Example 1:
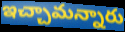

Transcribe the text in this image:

ఇచ్చామన్నారు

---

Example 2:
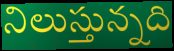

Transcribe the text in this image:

నిలుస్తున్నది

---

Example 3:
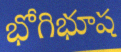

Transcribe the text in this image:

భోగిభూష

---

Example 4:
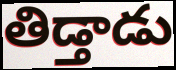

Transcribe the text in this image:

తిడ్తాడు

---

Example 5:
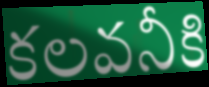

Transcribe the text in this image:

కలవనీకి